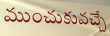
ముంచుకువచ్చే